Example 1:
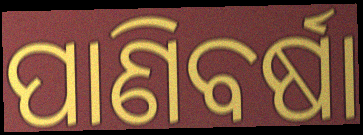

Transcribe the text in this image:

ପାଣିବର୍ଷା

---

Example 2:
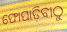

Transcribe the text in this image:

ଫୋପାଡ଼ିବାଠୁ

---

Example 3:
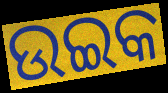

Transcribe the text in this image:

ଉଇକ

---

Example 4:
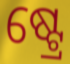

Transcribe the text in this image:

ଷ୍ଟ୍ରେ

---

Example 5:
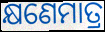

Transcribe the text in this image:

କ୍ଷଣେମାତ୍ର